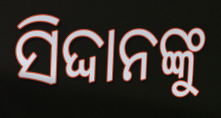
ସିଦ୍ଦାନଙ୍କୁ